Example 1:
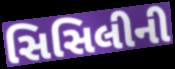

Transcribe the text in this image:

સિસિલીની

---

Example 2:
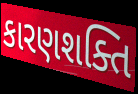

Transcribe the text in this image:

કારણશક્તિ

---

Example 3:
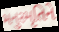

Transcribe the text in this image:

મનુસ્મૃતિને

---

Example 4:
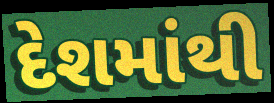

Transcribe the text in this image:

દેશમાંથી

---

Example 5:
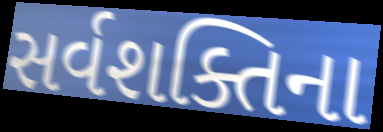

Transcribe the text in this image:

સર્વશક્તિના